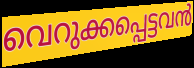
വെറുക്കപ്പെട്ടവൻ